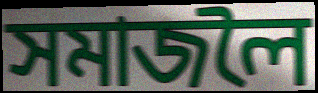
সমাজলৈ